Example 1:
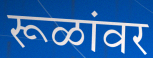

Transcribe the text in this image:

रूळांवर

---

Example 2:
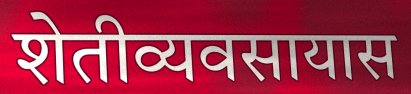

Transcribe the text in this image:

शेतीव्यवसायास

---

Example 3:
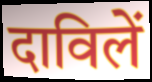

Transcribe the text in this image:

दाविलें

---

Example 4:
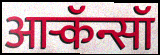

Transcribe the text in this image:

आर्‍कॅन्सॉ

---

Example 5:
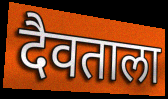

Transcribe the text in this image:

दैवताला